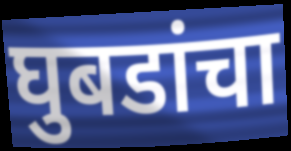
घुबडांचा